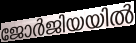
ജോർജിയയിൽ